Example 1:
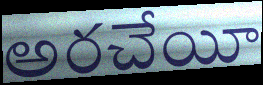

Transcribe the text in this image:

అరచేయీ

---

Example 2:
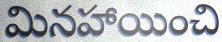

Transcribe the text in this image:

మినహాయించి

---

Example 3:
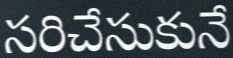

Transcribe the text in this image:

సరిచేసుకునే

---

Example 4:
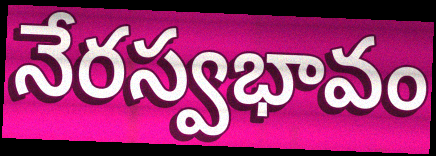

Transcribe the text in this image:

నేరస్వభావం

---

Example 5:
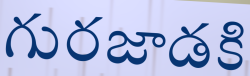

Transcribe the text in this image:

గురజాడకి